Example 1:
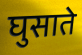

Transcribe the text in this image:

घुसाते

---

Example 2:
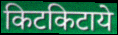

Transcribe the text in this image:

किटकिटाये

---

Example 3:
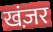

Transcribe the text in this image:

खंज़र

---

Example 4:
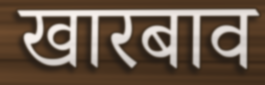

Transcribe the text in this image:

खारबाव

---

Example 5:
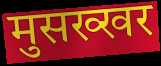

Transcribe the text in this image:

मुसख्खर